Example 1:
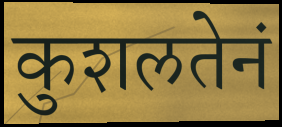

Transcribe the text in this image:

कुशलतेनं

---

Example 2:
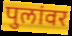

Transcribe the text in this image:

पुलांवर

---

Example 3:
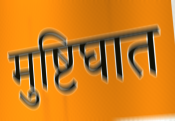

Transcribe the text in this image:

मुष्टिघात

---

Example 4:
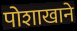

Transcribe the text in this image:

पोशाखाने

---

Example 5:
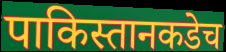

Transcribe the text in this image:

पाकिस्तानकडेच